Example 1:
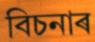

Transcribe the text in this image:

বিচনাৰ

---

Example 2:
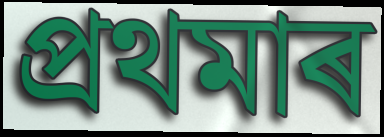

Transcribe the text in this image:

প্ৰথমাৰ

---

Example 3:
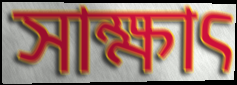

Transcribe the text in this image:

সাক্ষাৎ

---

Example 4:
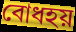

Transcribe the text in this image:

বোধহয়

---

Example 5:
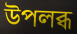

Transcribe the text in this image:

উপলব্ধ